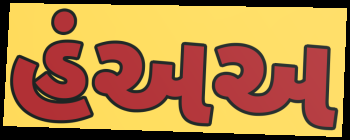
હંઅઅ